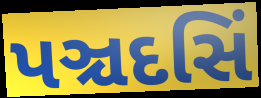
પઞ્ચદસિં